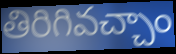
తిరిగివచ్చాం